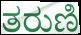
ತರುಣಿ